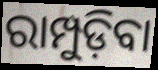
ରାମ୍ପୁଡ଼ିବା